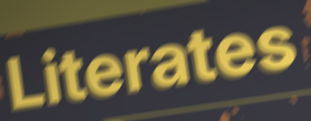
Literates